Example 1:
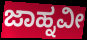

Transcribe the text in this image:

ಜಾಹ್ನವೀ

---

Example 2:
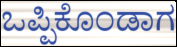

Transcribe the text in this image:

ಒಪ್ಪಿಕೊಂಡಾಗ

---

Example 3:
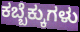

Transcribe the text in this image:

ಕಬ್ಬೆಕ್ಕುಗಳು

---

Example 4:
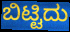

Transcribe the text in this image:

ಬಿಟ್ಟಿದು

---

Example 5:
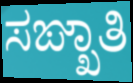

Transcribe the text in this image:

ಸಙ್ಖಾತಿ